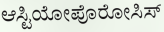
ಆಸ್ಟಿಯೋಪೊರೋಸಿಸ್